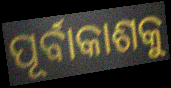
ପୂର୍ବାକାଶକୁ